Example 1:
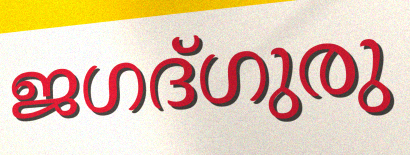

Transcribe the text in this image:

ജഗദ്ഗുരു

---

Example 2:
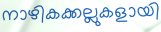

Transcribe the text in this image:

നാഴികക്കല്ലുകളായി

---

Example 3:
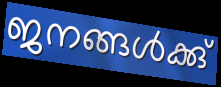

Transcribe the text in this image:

ജനങ്ങൾക്കു്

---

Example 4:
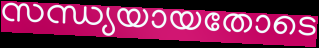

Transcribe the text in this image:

സന്ധ്യയായതോടെ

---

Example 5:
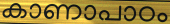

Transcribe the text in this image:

കാണാപാഠം